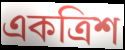
একত্রিশ